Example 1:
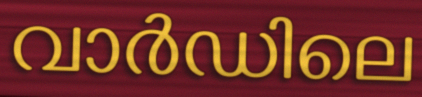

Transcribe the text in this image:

വാർഡിലെ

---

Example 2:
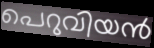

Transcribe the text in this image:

പെറുവിയൻ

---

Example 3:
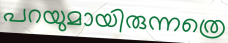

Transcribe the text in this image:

പറയുമായിരുന്നത്രെ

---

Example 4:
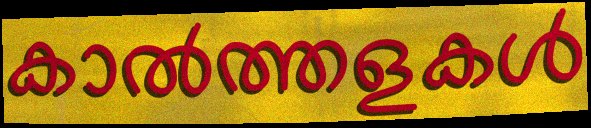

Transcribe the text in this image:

കാൽത്തളകൾ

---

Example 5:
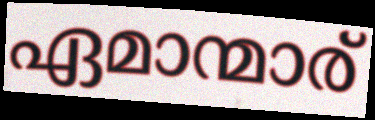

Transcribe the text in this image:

ഏമാന്മാര്